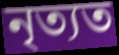
নৃত্যত